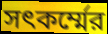
সৎকর্ম্মের